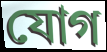
যোগ